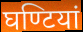
घण्टियां